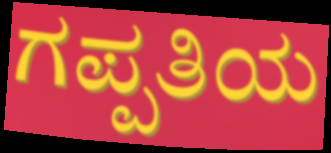
ಗಪ್ಪತಿಯ